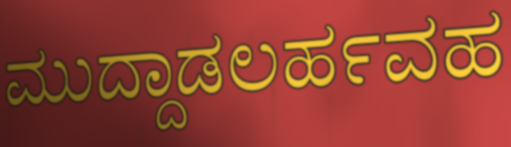
ಮುದ್ದಾಡಲರ್ಹವಹ